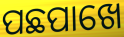
ପଛପାଖେ